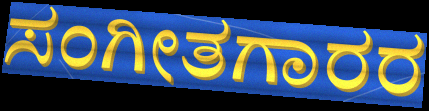
ಸಂಗೀತಗಾರರ